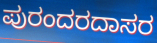
ಪುರಂದರದಾಸರ